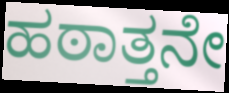
ಹಠಾತ್ತನೇ